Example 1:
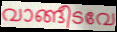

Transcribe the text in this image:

വാങ്ങീടവേ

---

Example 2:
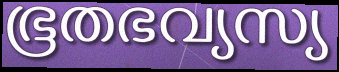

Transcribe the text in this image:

ഭൂതഭവ്യസ്യ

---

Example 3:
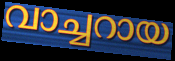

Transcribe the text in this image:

വാച്ചറായ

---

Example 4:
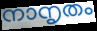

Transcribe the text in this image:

നാനൃതം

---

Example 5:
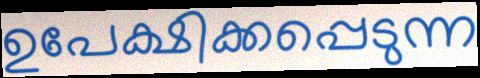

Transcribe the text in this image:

ഉപേക്ഷിക്കപ്പെടുന്ന